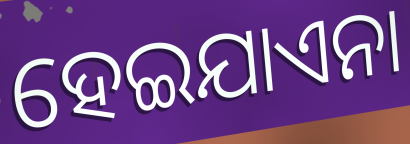
ହେଇଯାଏନା